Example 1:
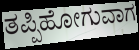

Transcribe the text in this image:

ತಪ್ಪಿಹೋಗುವಾಗ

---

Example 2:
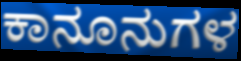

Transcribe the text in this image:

ಕಾನೂನುಗಳ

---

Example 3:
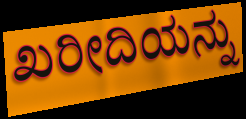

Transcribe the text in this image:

ಖರೀದಿಯನ್ನು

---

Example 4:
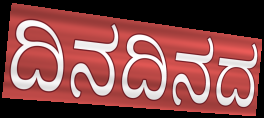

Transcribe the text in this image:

ದಿನದಿನದ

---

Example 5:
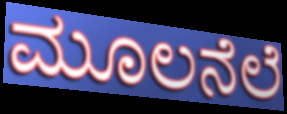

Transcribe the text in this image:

ಮೂಲನೆಲೆ